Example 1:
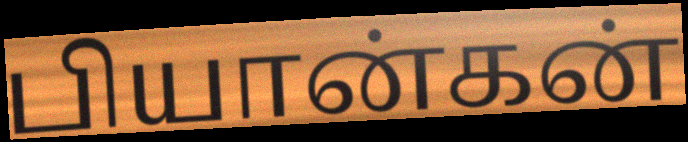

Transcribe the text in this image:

பியான்கன்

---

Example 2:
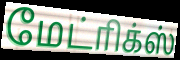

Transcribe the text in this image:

மேட்ரிக்ஸ்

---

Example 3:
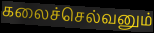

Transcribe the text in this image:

கலைச்செல்வனும்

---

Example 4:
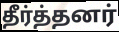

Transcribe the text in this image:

தீர்த்தனர்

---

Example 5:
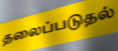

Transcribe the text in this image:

தலைப்படுதல்